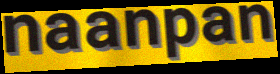
naanpan